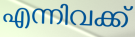
എന്നിവക്ക്